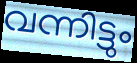
വന്നിട്ടും